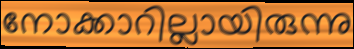
നോക്കാറില്ലായിരുന്നു